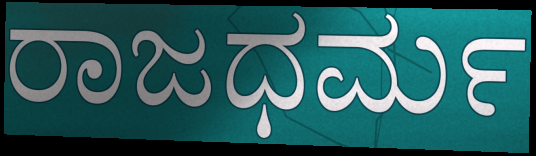
ರಾಜಧರ್ಮ